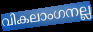
വികലാംഗനല്ല